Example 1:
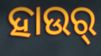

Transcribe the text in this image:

ହାଉର୍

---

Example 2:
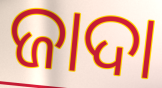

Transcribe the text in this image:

ଜାଦା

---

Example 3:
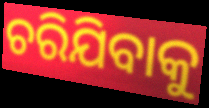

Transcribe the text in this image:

ଚରିଯିବାକୁ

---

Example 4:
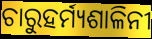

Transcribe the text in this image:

ଚାରୁହର୍ମ୍ୟଶାଳିନୀ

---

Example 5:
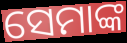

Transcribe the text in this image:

ସେମାଙ୍କ